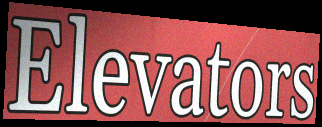
Elevators